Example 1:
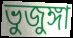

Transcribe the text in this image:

ভুজুঙ্গা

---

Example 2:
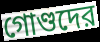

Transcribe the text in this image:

গোণ্ডদের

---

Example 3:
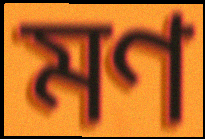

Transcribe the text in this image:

মণ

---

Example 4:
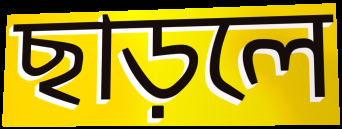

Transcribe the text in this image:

ছাড়লে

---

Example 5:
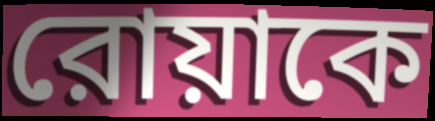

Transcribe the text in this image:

রোয়াকে